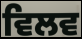
ਵਿਲਵ